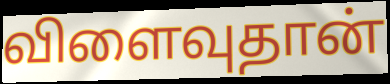
விளைவுதான்